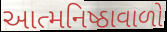
આત્મનિષ્ઠાવાળો